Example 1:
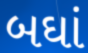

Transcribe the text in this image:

બઘાં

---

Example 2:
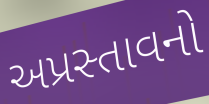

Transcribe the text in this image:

અપ્રસ્તાવનો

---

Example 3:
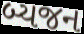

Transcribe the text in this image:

બ્યજન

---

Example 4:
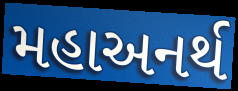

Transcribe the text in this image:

મહાઅનર્થ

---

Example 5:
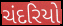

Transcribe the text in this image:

ચંદરિયો